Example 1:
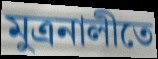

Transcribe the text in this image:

মুত্রনালীতে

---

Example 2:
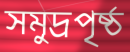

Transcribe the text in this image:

সমুদ্রপৃষ্ঠ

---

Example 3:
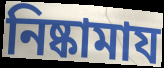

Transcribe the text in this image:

নিষ্কামায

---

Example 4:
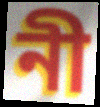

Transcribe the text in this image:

নী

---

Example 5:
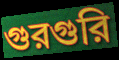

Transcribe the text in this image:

গুরগুরি